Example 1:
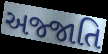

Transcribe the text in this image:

અજ્જાતિ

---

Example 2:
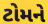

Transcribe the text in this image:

ટોમને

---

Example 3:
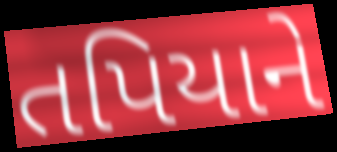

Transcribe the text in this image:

તપિયાને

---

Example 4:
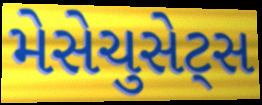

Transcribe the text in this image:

મેસેચુસેટ્સ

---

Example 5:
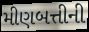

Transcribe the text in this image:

મીણબત્તીની